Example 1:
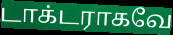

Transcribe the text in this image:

டாக்டராகவே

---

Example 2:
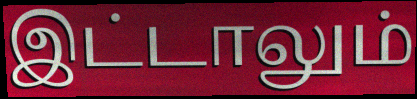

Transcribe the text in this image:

இட்டாலும்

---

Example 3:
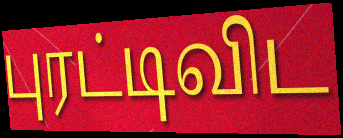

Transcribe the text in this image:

புரட்டிவிட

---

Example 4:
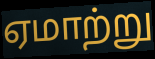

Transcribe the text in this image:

ஏமாற்று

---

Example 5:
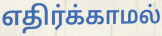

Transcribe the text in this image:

எதிர்க்காமல்